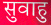
सुवाहु